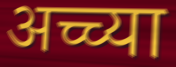
अच्च्या